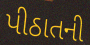
પીઠાતની